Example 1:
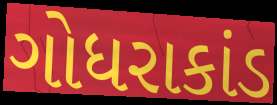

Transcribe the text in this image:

ગોધરાકાંડ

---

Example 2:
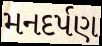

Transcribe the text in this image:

મનદર્પણ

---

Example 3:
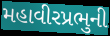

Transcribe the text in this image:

મહાવીરપ્રભુની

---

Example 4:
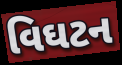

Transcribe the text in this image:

વિઘટન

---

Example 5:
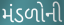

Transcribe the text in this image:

મંડળોની